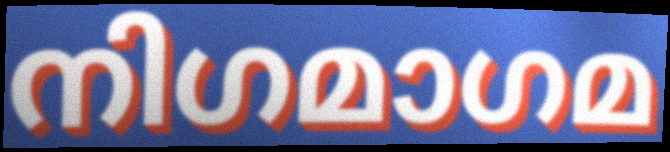
നിഗമാഗമ